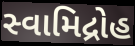
સ્વામિદ્રોહ